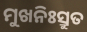
ମୁଖନିଃସ୍ରୁତ